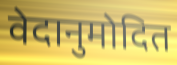
वेदानुमोदित